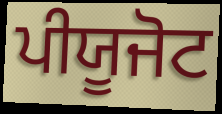
ਪੀਯੂਜੋਟ